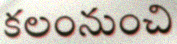
కలంనుంచి